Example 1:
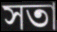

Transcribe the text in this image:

সতা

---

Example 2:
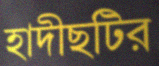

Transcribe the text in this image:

হাদীছটির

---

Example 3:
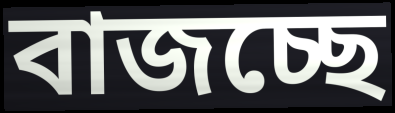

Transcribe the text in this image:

বাজচ্ছে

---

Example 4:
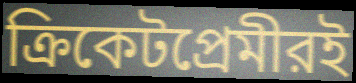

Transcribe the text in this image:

ক্রিকেটপ্রেমীরই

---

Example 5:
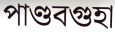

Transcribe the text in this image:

পাণ্ডবগুহা